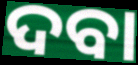
ଦବା